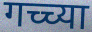
गच्च्या